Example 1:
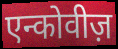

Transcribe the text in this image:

एन्कोवीज़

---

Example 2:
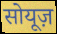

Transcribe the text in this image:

सोयूज़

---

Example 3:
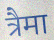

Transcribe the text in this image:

त्रैमा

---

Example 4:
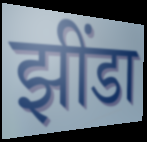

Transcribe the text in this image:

झींडा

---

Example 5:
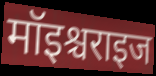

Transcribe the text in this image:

मॉइश्चराइज